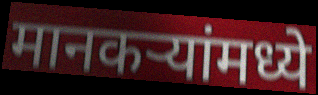
मानकऱ्यांमध्ये